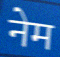
नेम